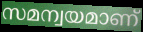
സമന്വയമാണ്